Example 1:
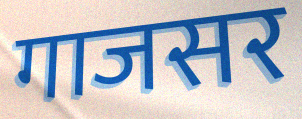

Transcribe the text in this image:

गाजसर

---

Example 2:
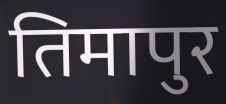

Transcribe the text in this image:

तिमापुर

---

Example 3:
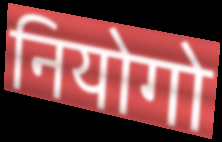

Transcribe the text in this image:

नियोगो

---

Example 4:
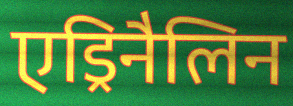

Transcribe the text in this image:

एड्रिनैलिन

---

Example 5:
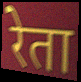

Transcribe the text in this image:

रेता